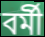
বর্মী